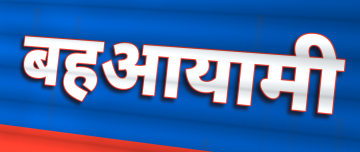
बहआयामी